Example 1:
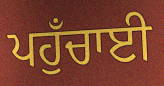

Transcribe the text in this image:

ਪਹੁਁਚਾਈ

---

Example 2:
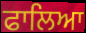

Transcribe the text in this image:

ਫਾਲਿਆ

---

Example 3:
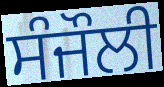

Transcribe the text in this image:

ਸੰਜੌਲੀ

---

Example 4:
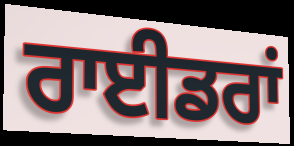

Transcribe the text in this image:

ਰਾਈਡਰਾਂ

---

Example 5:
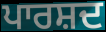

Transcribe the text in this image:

ਪਾਰਸ਼ਦ